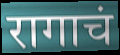
रागाचं